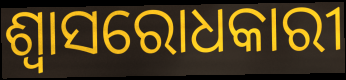
ଶ୍ୱାସରୋଧକାରୀ